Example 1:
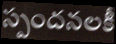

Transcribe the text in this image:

స్పందనలకీ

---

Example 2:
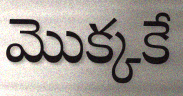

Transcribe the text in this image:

మొక్కకే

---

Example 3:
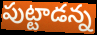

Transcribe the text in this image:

పుట్టాడన్న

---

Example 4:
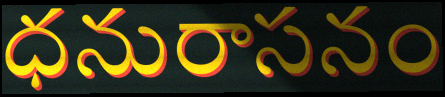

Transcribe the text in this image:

ధనురాసనం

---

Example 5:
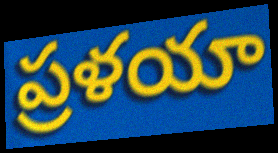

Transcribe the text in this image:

ప్రళయా